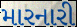
મારનારી